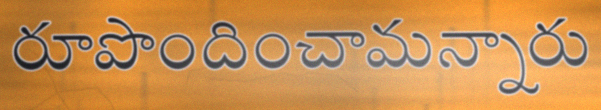
రూపొందించామన్నారు